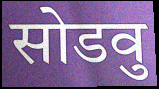
सोडवु